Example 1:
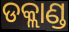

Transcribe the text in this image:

ଡକ୍ଲାଣ୍ଡ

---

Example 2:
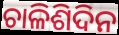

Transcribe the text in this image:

ଚାଳିଶିଦିନ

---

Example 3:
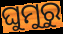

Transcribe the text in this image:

ଘୁମୁରୁ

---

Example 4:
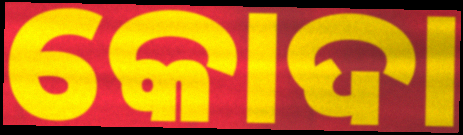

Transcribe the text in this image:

କୋଦା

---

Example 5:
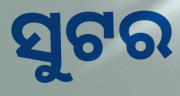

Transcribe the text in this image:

ସୁଟର